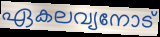
ഏകലവ്യനോട്